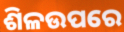
ଶିଳଉପରେ